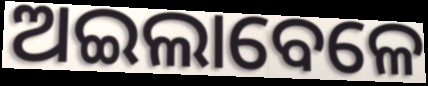
ଅଇଲାବେଳେ